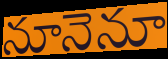
నూనెనూ